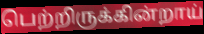
பெற்றிருக்கின்றாய்